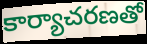
కార్యాచరణతో